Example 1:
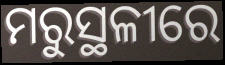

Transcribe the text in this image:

ମରୁସ୍ଥଳୀରେ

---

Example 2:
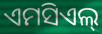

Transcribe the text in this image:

ଏମସିଏଲ୍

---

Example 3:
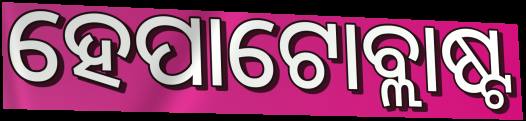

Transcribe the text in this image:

ହେପାଟୋବ୍ଲାଷ୍ଟ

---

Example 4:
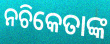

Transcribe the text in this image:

ନଚିକେତାଙ୍କ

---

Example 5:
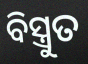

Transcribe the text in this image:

ବିସ୍ତ୍ରୁତ